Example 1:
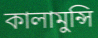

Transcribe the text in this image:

কালামুন্সি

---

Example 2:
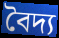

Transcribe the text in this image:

বৈদ্য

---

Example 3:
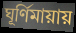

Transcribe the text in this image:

ঘূর্ণিমায়ায়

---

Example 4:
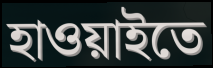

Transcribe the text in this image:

হাওয়াইতে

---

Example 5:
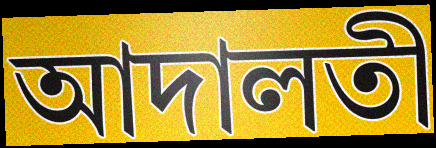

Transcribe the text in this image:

আদালতী